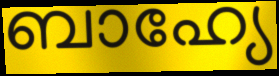
ബാഹ്യേ